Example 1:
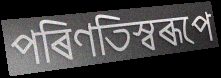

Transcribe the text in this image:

পৰিণতিস্বৰূপে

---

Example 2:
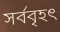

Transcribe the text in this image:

সৰ্ববৃহৎ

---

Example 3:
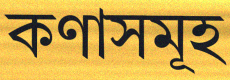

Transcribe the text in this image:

কণাসমূহ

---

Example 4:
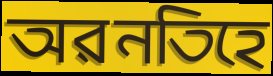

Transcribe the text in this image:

অৱনতিহে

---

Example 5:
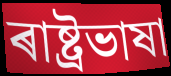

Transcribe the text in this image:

ৰাষ্ট্ৰভাষা